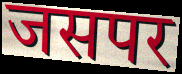
जसपर